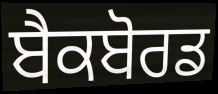
ਬੈਕਬੋਰਡ